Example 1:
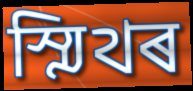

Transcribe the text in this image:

স্মিথৰ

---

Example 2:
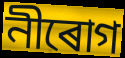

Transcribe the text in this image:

নীৰোগ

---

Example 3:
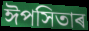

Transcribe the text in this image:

ঈপসিতাৰ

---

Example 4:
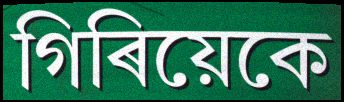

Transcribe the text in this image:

গিৰিয়েকে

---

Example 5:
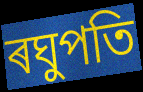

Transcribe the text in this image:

ৰঘুপতি